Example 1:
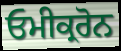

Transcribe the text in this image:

ਓਮੀਕ੍ਰਰੋਨ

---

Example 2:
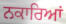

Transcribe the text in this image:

ਨਕਾਰਿਆਂ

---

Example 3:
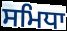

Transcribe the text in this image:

ਸਮਿਧਾ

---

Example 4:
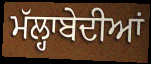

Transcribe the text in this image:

ਮੱਲ੍ਹਾਬੇਦੀਆਂ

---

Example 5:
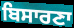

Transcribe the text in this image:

ਬਿਸਾਰਣਾ